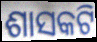
ଶାସକଟି